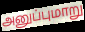
அனுப்புமாறு